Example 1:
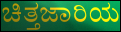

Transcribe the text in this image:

ಚಿತ್ತಜಾರಿಯ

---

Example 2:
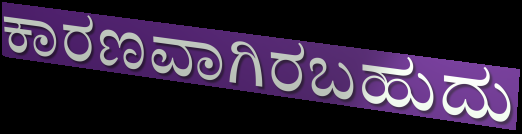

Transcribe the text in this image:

ಕಾರಣವಾಗಿರಬಹುದು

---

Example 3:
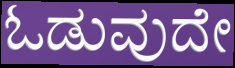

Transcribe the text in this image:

ಓಡುವುದೇ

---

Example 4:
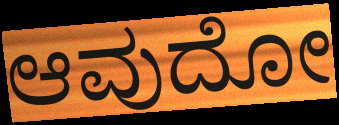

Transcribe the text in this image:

ಆವುದೋ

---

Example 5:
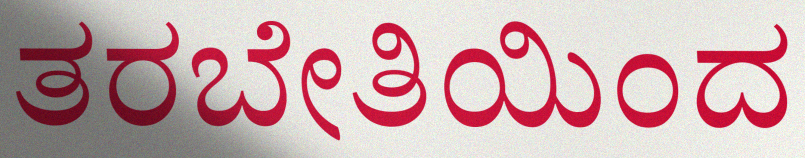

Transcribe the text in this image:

ತರಬೇತಿಯಿಂದ